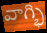
వాగ్భి